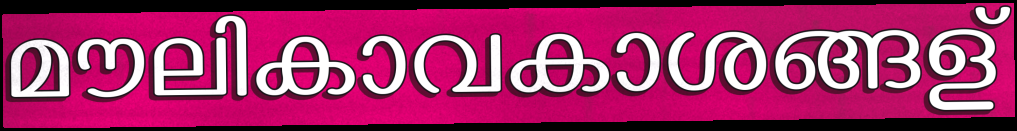
മൗലികാവകാശങ്ങള്